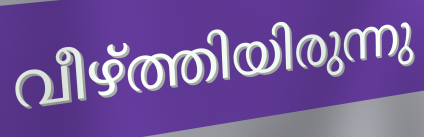
വീഴ്ത്തിയിരുന്നു